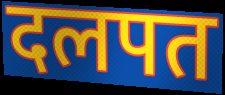
दलपत